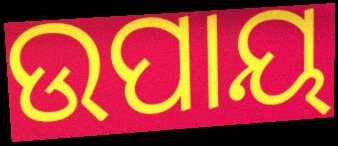
ଉପାୟ